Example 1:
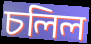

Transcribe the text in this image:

চলিল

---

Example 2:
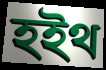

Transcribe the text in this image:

হইথ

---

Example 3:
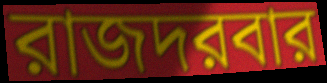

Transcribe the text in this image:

রাজদরবার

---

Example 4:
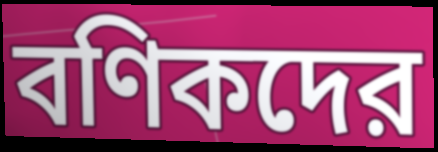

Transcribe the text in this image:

বণিকদের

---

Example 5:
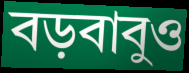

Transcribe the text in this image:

বড়বাবুও